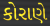
કોરાણે